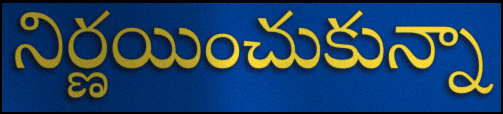
నిర్ణయించుకున్నా